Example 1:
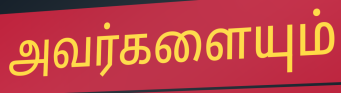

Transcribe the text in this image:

அவர்களையும்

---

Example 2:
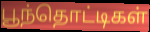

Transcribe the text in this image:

பூந்தொட்டிகள்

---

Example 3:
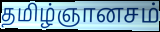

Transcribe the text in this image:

தமிழ்ஞானசம்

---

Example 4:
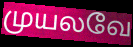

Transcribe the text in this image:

முயலவே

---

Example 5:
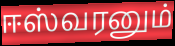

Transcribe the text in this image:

ஈஸ்வரனும்